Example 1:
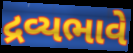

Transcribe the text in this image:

દ્રવ્યભાવે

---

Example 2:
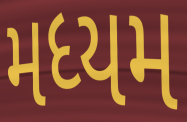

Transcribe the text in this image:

મધ્યમ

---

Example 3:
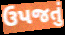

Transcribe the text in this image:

ઉપજતું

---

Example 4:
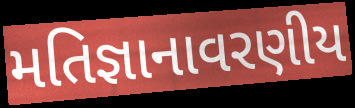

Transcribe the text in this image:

મતિજ્ઞાનાવરણીય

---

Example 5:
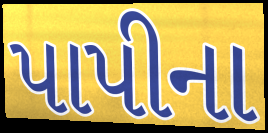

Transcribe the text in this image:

પાપીના